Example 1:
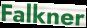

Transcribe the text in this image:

Falkner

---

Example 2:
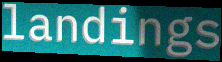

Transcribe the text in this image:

landings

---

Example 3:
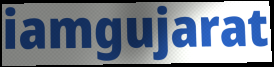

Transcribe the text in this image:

iamgujarat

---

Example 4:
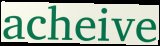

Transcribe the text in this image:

acheive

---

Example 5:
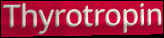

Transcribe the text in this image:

Thyrotropin